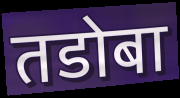
तडोबा